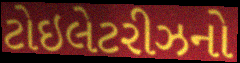
ટોઇલેટરીઝનો